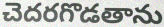
చెదరగొడతాను